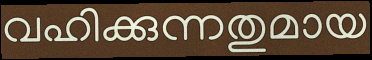
വഹിക്കുന്നതുമായ